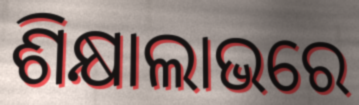
ଶିକ୍ଷାଲାଭରେ